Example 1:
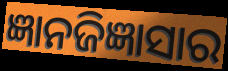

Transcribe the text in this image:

ଜ୍ଞାନଜିଜ୍ଞାସାର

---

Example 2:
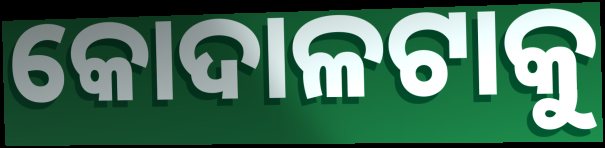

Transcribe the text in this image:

କୋଦାଳଟାକୁ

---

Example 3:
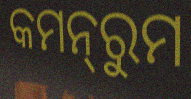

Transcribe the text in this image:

କମନ୍‌ରୁମ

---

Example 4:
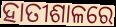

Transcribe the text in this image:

ହାତୀଶାଳରେ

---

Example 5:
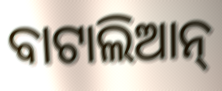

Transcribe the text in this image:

ବାଟାଲିଆନ୍